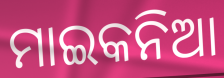
ମାଇକନିଆ